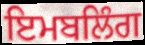
ਇਮਬਲਿੰਗ